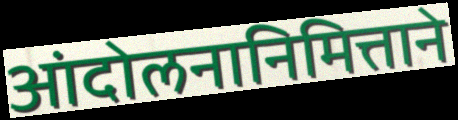
आंदोलनानिमित्ताने